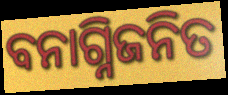
ବନାଗ୍ନିଜନିତ